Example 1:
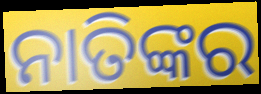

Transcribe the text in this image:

ନାତିଙ୍କର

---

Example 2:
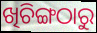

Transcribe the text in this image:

ଖିଚିଙ୍ଗଠାରୁ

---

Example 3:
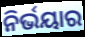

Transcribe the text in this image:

ନିର୍ଭୟାର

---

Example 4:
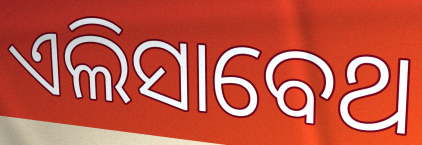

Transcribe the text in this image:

ଏଲିସାବେଥ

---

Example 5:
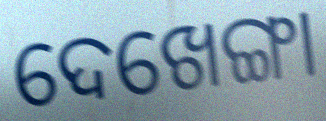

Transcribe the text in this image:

ଦେଖେଙ୍ଗା